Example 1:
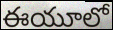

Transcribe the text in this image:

ఈయూలో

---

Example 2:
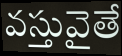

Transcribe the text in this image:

వస్తువైతే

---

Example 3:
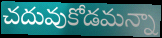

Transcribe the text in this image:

చదువుకోడమన్నా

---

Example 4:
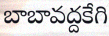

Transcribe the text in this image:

బాబావద్దకేగి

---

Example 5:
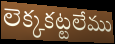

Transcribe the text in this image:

లెక్కకట్టలేము